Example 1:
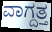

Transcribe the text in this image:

ವಾಗ್ದತ್ತ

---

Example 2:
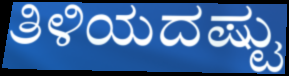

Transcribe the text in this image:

ತಿಳಿಯದಷ್ಟು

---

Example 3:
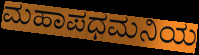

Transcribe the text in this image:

ಮಹಾಪಧಮನಿಯ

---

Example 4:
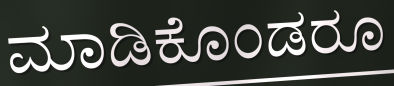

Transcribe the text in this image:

ಮಾಡಿಕೊಂಡರೂ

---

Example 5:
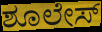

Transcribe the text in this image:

ಶೂಲೇಸ್